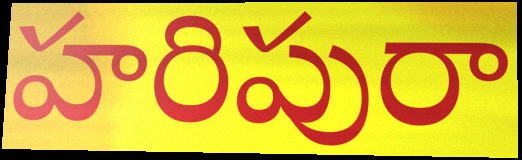
హరిపురా